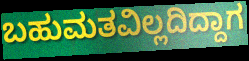
ಬಹುಮತವಿಲ್ಲದಿದ್ದಾಗ